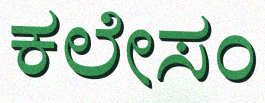
ಕಲೇಸಂ